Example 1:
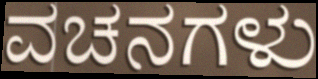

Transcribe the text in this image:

ವಚನಗಳು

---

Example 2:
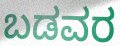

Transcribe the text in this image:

ಬಡವರ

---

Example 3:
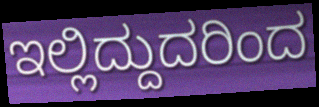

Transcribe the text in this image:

ಇಲ್ಲಿದ್ದುದರಿಂದ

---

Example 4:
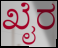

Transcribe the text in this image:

ಖೈರ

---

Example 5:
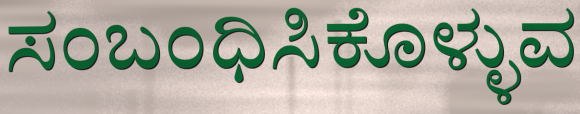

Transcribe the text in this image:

ಸಂಬಂಧಿಸಿಕೊಳ್ಳುವ